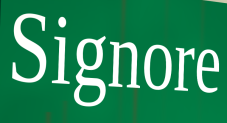
Signore